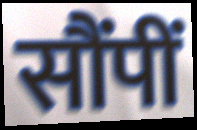
सौंपीं